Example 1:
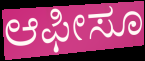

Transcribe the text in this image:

ಆಫೀಸೂ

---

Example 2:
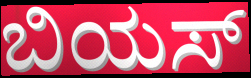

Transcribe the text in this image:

ಬಿಯಸ್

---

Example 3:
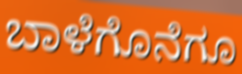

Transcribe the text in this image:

ಬಾಳೆಗೊನೆಗೂ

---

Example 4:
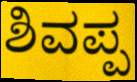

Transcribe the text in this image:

ಶಿವಪ್ಪ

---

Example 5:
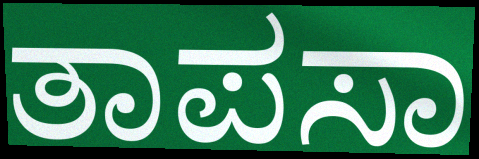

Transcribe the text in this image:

ತಾಪಸಾ